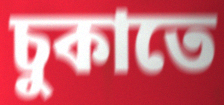
চুকাতে